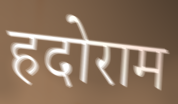
हदोराम